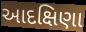
આદક્ષિણા